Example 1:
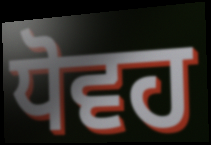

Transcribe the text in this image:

ਧੋਵਹ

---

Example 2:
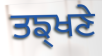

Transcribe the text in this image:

ਤਙ੍ਖਣੇ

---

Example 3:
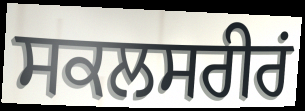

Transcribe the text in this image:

ਸਕਲਸਰੀਰਂ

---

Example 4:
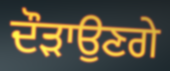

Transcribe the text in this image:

ਦੌੜਾਉਣਗੇ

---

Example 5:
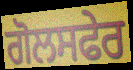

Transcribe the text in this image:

ਗੋਲਸਫੇਰ